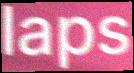
laps